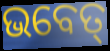
ଭବେତ୍